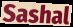
Sashal